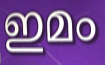
ഇമം